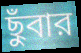
ছুঁবার